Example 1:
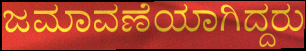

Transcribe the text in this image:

ಜಮಾವಣೆಯಾಗಿದ್ದರು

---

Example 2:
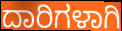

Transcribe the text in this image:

ದಾರಿಗಳಾಗಿ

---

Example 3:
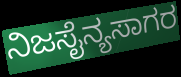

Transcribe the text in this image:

ನಿಜಸೈನ್ಯಸಾಗರ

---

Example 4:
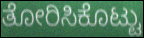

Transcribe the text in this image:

ತೋರಿಸಿಕೊಟ್ಟು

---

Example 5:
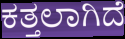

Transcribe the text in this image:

ಕತ್ತಲಾಗಿದೆ